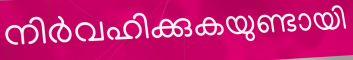
നിർവഹിക്കുകയുണ്ടായി